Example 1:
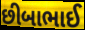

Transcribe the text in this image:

છીબાભાઈ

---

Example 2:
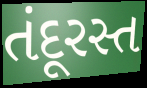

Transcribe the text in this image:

તંદૂરસ્ત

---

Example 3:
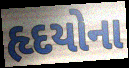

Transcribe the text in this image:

હૃદયોના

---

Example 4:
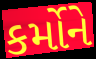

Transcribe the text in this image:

કર્મોને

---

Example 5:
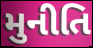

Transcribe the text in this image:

મુનીતિ